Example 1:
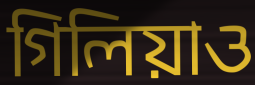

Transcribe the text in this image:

গিলিয়াও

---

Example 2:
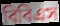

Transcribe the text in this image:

বিবিএস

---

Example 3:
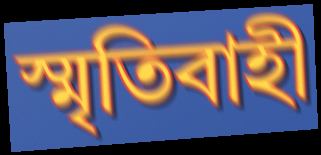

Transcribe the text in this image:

স্মৃতিবাহী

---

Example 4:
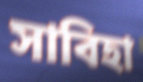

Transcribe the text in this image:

সাবিহা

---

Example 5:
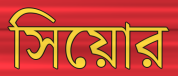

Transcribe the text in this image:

সিয়োর